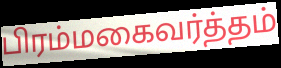
பிரம்மகைவர்த்தம்